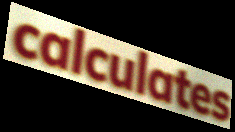
calculates